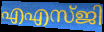
എഎസ്ജി